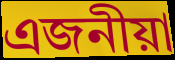
এজনীয়া